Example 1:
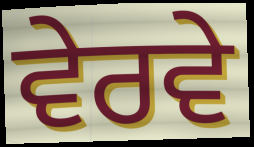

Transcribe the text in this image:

ਵੇਰਵੇ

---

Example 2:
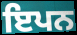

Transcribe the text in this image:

ਇਪਨ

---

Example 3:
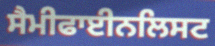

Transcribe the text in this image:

ਸੈਮੀਫਾਈਨਲਿਸਟ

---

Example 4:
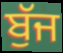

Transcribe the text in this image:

ਬੁੱਜ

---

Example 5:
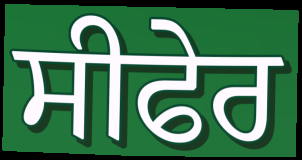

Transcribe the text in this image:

ਸੀਫੇਰ